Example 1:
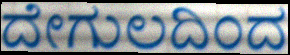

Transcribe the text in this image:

ದೇಗುಲದಿಂದ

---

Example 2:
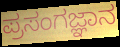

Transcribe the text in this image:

ಪ್ರಸಂಗಜ್ಞಾನ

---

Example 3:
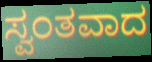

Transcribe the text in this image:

ಸ್ವಂತವಾದ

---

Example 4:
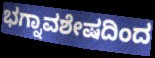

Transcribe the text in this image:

ಭಗ್ನಾವಶೇಷದಿಂದ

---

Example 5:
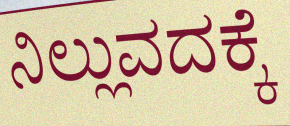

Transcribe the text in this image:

ನಿಲ್ಲುವದಕ್ಕೆ